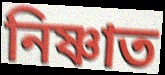
নিষ্ণাত